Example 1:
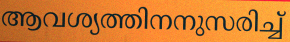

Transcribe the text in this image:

ആവശ്യത്തിനനുസരിച്ച്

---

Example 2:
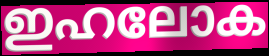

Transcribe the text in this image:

ഇഹലോക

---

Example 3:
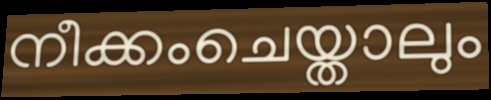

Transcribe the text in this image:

നീക്കംചെയ്താലും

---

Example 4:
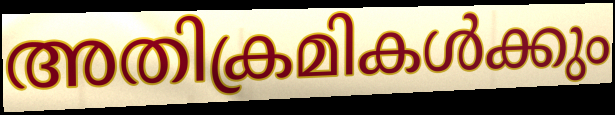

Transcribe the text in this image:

അതിക്രമികൾക്കും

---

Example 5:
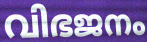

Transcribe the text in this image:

വിഭജനം